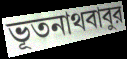
ভূতনাথবাবুর